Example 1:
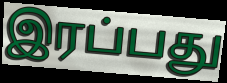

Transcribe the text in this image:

இரப்பது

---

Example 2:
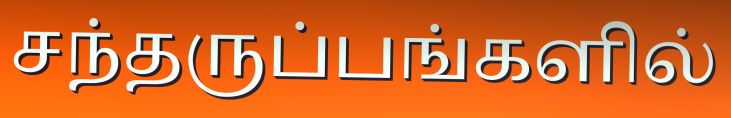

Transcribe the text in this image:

சந்தருப்பங்களில்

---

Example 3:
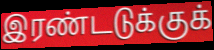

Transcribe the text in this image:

இரண்டடுக்குக்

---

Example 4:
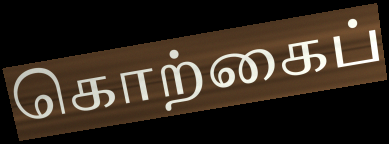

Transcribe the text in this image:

கொற்கைப்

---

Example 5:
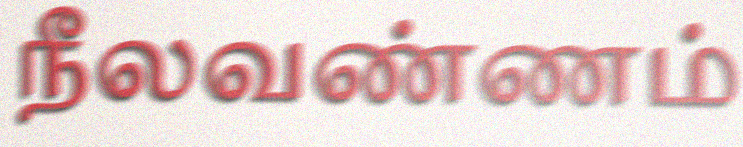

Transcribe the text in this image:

நீலவண்ணம்